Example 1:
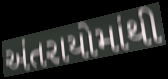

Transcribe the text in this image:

અંતરાયોમાંથી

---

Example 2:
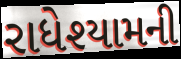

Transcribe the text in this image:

રાધેશ્યામની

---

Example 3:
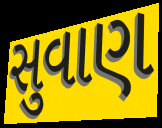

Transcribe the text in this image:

સુવાણ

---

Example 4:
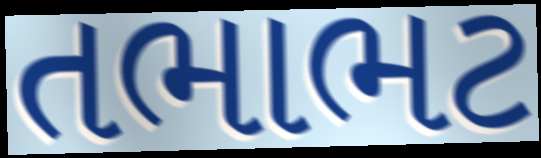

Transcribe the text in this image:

તભાભટ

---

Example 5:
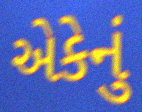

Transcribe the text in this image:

એકેનું